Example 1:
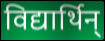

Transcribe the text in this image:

विद्यार्थिन्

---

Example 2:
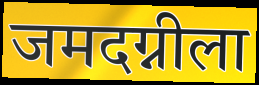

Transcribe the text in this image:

जमदग्नीला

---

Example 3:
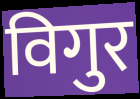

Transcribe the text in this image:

विगुर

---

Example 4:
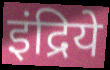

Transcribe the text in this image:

इंद्रिये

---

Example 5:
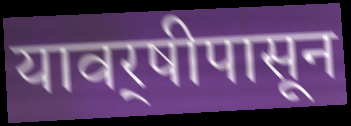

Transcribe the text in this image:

यावर्षीपासून